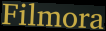
Filmora